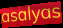
asalyas